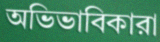
অভিভাবিকারা